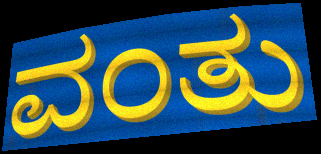
ವಂತು